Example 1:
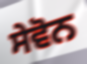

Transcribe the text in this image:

ਸੇਵੋਨ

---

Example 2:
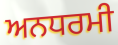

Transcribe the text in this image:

ਅਨਧਰਮੀ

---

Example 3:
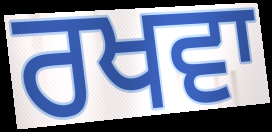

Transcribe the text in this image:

ਰਖਵਾ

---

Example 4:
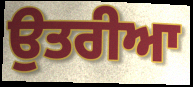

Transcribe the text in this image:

ਉਤਰੀਆ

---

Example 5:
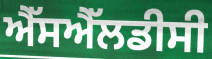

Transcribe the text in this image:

ਐੱਸਐੱਲਡੀਸੀ